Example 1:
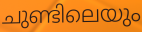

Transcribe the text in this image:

ചുണ്ടിലെയും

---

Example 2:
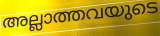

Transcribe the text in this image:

അല്ലാത്തവയുടെ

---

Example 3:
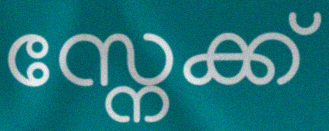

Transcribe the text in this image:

സ്നേക്ക്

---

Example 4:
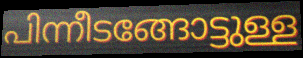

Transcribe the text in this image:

പിന്നീടങ്ങോട്ടുള്ള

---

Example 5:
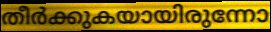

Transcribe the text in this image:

തീർക്കുകയായിരുന്നോ